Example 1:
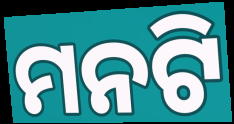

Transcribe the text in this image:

ମନଟି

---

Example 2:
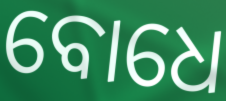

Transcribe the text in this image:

ବୋଧେ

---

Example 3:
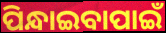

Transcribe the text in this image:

ପିନ୍ଧାଇବାପାଇଁ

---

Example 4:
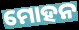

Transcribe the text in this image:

ମୋହନ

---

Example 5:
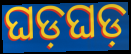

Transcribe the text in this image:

ଘଡ଼ଘଡ଼